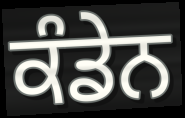
ਕੰਡੇਨ